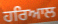
ਹਰਿਆਲ